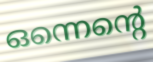
ഒന്നെന്റെ